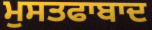
ਮੁਸਤਫਾਬਾਦ